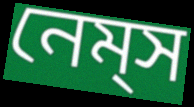
নেম্‌স